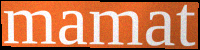
mamat